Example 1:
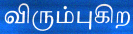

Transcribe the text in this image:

விரும்புகிற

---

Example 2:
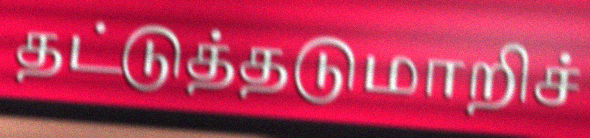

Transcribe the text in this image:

தட்டுத்தடுமாறிச்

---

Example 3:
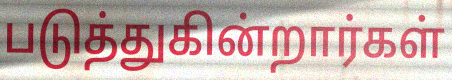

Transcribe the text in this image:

படுத்துகின்றார்கள்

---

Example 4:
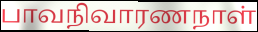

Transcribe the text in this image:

பாவநிவாரணநாள்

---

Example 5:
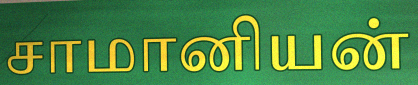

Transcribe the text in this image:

சாமானியன்